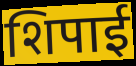
शिपाई